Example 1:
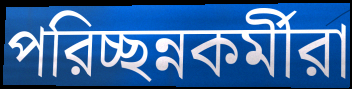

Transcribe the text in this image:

পরিচ্ছন্নকর্মীরা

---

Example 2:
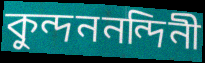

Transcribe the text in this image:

কুন্দননন্দিনী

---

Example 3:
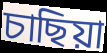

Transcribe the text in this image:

চাছিয়া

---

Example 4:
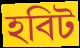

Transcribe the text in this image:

হবিট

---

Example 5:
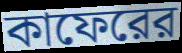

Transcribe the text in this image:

কাফেরের